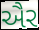
ઐર